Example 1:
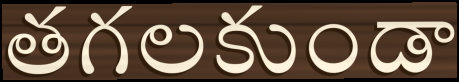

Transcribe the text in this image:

తగలకుండా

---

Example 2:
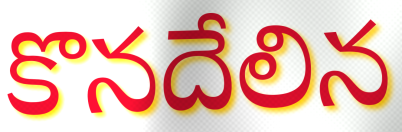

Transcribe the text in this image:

కొనదేలిన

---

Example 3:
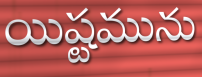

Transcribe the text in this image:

యిష్టమును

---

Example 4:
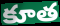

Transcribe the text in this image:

కూత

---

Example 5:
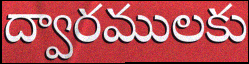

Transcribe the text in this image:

ద్వారములకు